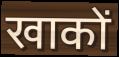
खाकों